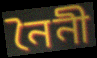
নৈনী